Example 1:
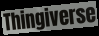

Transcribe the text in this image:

Thingiverse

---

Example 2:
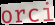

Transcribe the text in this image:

orci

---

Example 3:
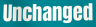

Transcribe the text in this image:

Unchanged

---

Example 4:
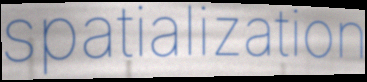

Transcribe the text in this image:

spatialization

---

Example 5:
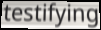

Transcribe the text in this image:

testifying